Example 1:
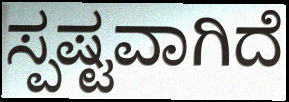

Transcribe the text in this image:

ಸ್ಪಷ್ಟವಾಗಿದೆ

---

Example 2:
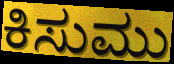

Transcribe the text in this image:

ಕಿಸುಮು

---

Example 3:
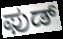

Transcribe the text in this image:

ಫುಡ್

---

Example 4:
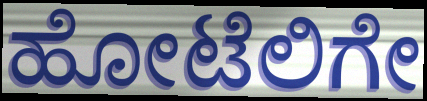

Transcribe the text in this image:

ಹೋಟೆಲಿಗೇ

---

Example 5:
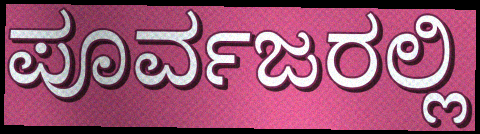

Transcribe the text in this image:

ಪೂರ್ವಜರಲ್ಲಿ